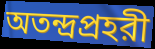
অতন্দ্রপ্রহরী